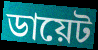
ডায়েট